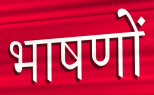
भाषणों